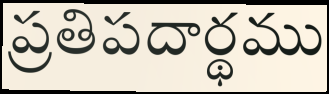
ప్రతిపదార్థము